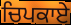
ਚਿਪਕਾਏ